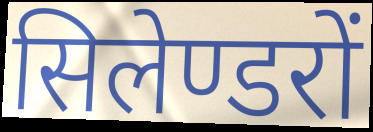
सिलेण्डरों